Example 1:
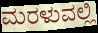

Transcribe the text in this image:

ಮರಳುವಲ್ಲಿ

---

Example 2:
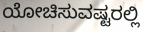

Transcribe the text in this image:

ಯೋಚಿಸುವಷ್ಟರಲ್ಲಿ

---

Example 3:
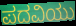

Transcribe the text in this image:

ಪದವಿಯು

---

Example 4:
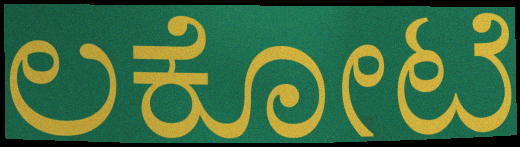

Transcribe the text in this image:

ಲಕೋಟೆ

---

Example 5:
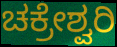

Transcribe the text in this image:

ಚಕ್ರೇಶ್ವರಿ